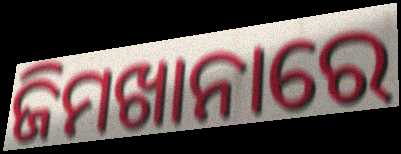
ଜିମଖାନାରେ